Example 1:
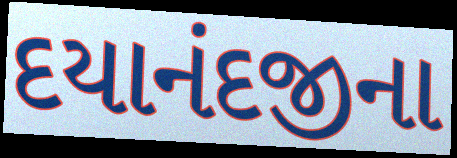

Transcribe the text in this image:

દયાનંદજીના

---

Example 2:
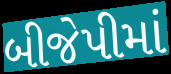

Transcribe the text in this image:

બીજેપીમાં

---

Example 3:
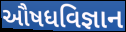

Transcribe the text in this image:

ઔષધવિજ્ઞાન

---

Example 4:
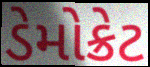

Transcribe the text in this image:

ડેમોક્રેટ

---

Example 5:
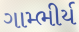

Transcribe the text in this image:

ગામ્ભીર્ય